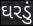
ઘરડું